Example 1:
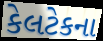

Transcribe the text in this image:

કેલટેકના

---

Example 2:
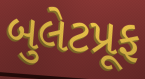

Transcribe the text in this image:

બુલેટપ્રૂફ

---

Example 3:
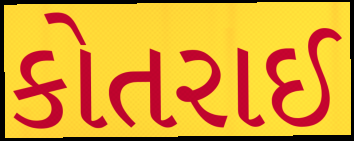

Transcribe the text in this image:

કોતરાઈ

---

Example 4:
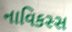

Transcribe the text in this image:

નાવિકસ્સ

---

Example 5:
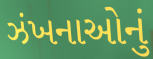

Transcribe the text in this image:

ઝંખનાઓનું